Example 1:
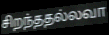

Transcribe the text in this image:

சிறந்ததல்லவா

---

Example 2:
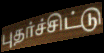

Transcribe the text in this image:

புதர்ச்சிட்டு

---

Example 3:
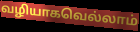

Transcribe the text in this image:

வழியாகவெல்லாம்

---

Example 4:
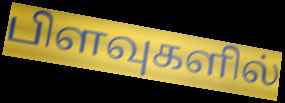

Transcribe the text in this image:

பிளவுகளில்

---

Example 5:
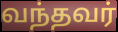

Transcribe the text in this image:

வந்தவர்